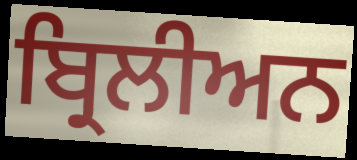
ਬ੍ਰਿਲੀਅਨ